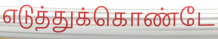
எடுத்துக்கொண்டே